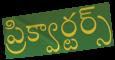
ప్రిక్వార్టర్స్